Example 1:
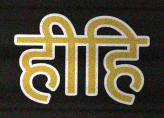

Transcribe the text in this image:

हीहि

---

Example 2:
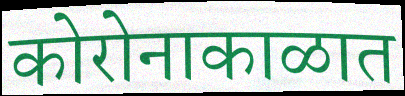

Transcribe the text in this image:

कोरोनाकाळात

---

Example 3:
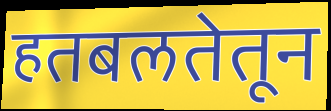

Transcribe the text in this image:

हतबलतेतून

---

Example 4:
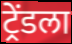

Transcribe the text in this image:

ट्रेंडला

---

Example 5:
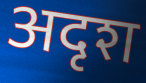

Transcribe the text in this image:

अदृश